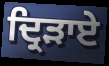
ਦ੍ਰਿੜਾਏ